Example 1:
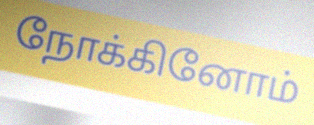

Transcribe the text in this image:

நோக்கினோம்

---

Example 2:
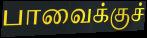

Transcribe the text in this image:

பாவைக்குச்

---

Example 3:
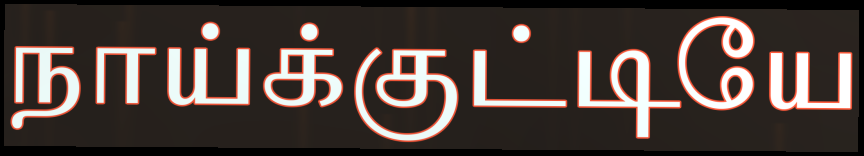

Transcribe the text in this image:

நாய்க்குட்டியே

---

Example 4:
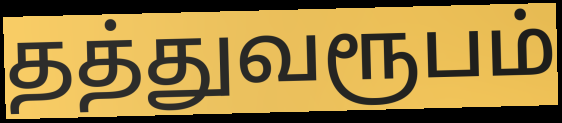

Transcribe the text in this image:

தத்துவரூபம்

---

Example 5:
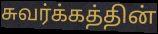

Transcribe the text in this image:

சுவர்க்கத்தின்